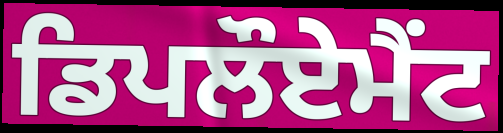
ਡਿਪਲੌਏਮੈਂਟ